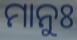
ମାନୁଃ